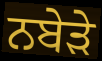
ਨਬੇੜੇ